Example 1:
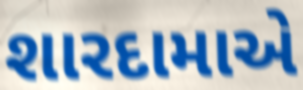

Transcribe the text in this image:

શારદામાએ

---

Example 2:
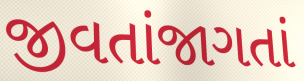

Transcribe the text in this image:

જીવતાંજાગતાં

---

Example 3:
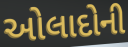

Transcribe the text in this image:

ઓલાદોની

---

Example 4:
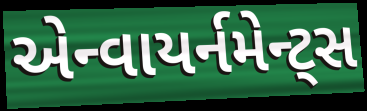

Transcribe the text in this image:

એન્વાયર્નમેન્ટ્સ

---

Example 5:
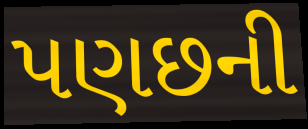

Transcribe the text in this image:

પણછની